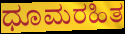
ಧೂಮರಹಿತ